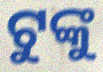
ଟୁଙ୍କୁ